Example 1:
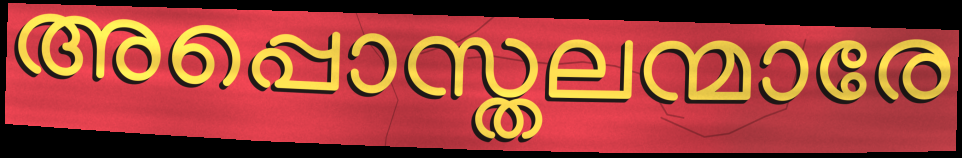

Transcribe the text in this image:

അപ്പൊസ്തലന്മാരേ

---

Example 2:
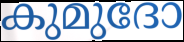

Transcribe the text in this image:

കുമുദോ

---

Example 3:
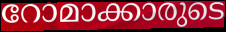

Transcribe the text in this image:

റോമാക്കാരുടെ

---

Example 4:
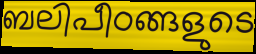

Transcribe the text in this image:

ബലിപീഠങ്ങളുടെ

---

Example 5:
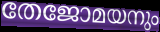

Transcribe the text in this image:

തേജോമയനും